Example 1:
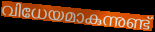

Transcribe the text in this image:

വിധേയമാകുന്നുണ്ട്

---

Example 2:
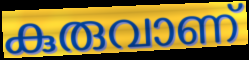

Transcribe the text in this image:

കുരുവാണ്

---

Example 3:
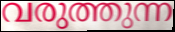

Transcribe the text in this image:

വരുത്തുന്ന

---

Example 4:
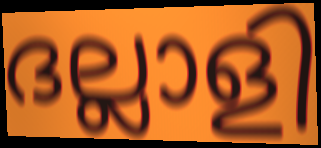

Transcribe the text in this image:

ദല്ലാളി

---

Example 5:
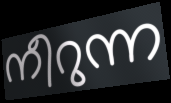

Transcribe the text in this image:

നീറുന്ന